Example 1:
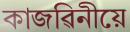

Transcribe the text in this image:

কাজৱিনীয়ে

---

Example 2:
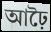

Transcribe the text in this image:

আঢ়ৈ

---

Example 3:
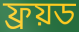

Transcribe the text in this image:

ফ্ৰয়ড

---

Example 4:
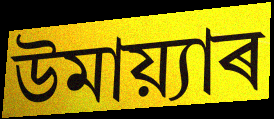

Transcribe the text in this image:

উমায়্যাৰ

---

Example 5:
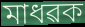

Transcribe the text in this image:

মাধৱক